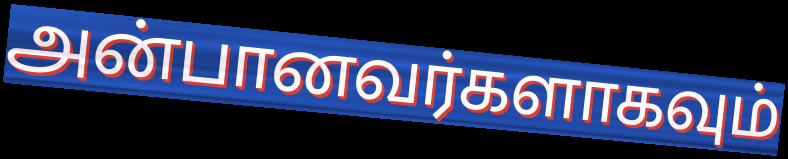
அன்பானவர்களாகவும்